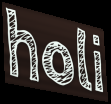
holi